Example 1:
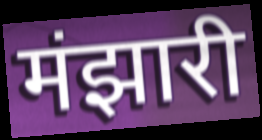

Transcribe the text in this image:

मंझारी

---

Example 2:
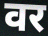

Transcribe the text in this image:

वर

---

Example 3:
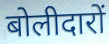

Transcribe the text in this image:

बोलीदारों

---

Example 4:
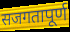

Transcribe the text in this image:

सजगतापूर्ण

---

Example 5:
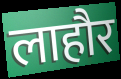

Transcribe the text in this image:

लाहौर